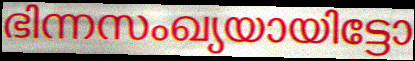
ഭിന്നസംഖ്യയായിട്ടോ